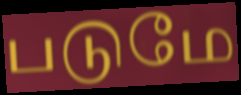
படுமே